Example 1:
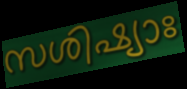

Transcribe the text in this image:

സശിഷ്യാഃ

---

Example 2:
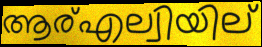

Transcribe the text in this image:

ആര്എല്വിയില്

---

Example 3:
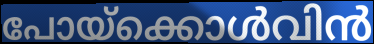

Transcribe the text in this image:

പോയ്ക്കൊൾവിൻ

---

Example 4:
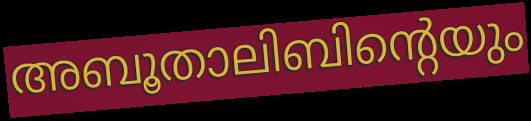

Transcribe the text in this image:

അബൂതാലിബിന്റെയും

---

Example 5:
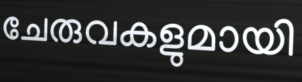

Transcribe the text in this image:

ചേരുവകളുമായി